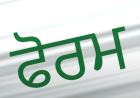
ਫੋਰਮ